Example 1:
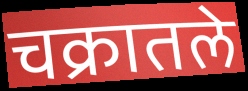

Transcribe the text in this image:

चक्रातले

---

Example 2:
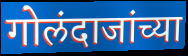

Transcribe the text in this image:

गोलंदाजांच्या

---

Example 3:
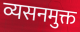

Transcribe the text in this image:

व्यसनमुक्त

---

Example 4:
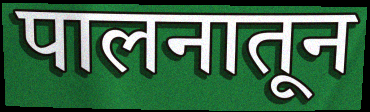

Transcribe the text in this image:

पालनातून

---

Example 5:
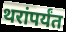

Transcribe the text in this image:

थरांपर्यंत